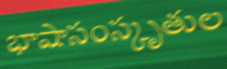
భాషాసంస్కృతుల